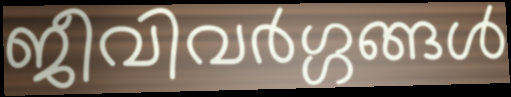
ജീവിവർഗ്ഗങ്ങൾ